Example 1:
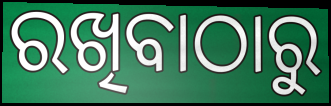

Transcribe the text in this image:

ରଖିବାଠାରୁ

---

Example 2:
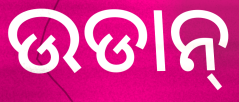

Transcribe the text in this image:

ଉଡାନ୍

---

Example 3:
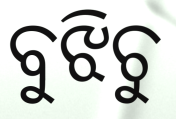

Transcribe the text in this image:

ବୁଝିଚୁ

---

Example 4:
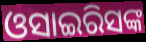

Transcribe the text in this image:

ଓସାଇରିସଙ୍କ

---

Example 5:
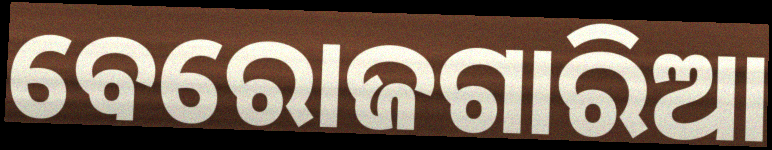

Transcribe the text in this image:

ବେରୋଜଗାରିଆ